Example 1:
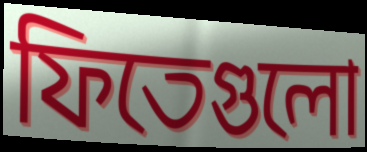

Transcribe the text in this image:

ফিতেগুলো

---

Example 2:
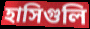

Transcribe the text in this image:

হাসিগুলি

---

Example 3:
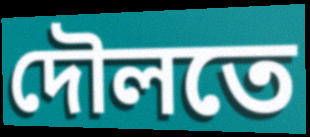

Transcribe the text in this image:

দৌলতে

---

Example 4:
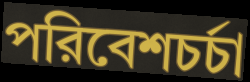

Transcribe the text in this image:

পরিবেশচর্চা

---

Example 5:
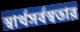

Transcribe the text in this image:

স্বার্থসর্বস্বতার